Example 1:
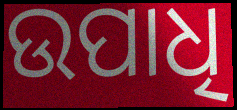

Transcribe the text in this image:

ଉପାଧି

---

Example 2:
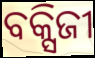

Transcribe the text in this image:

ବକ୍ସିଜୀ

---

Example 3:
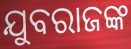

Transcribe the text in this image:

ଯୁବରାଜଙ୍କ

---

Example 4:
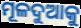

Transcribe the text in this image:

ମୂଳଦୁଆକୁ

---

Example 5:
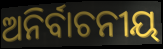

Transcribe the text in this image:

ଅନିର୍ବାଚନୀୟ